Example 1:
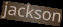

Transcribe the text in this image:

jackson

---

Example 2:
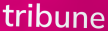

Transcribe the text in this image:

tribune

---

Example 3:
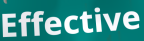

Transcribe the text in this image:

Effective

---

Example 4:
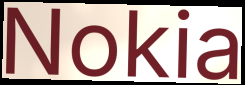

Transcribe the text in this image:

Nokia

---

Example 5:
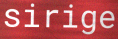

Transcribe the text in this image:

sirige